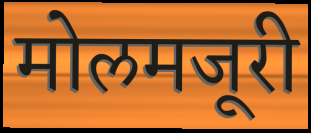
मोलमजूरी